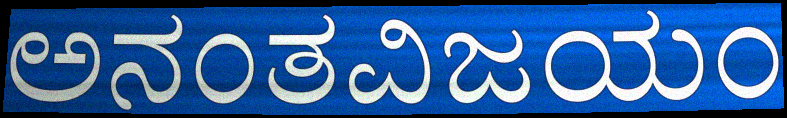
ಅನಂತವಿಜಯಂ